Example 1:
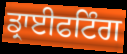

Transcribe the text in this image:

ਡ੍ਰਾਈਫਟਿੰਗ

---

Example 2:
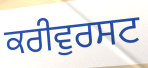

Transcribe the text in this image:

ਕਰੀਵੁਰਸਟ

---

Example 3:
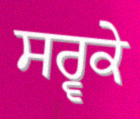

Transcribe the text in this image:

ਸਰ੍ਵਕੇ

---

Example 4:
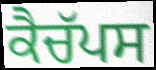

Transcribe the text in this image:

ਕੈਚੱਪਸ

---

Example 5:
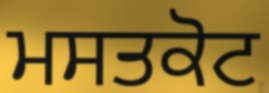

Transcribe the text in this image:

ਮਸਤਕੋਟ